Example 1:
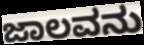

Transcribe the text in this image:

ಜಾಲವನು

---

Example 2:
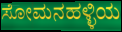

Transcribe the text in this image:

ಸೋಮನಹಳ್ಳಿಯ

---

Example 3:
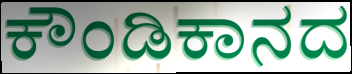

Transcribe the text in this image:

ಕೌಂಡಿಕಾನದ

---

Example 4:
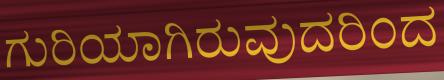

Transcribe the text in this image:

ಗುರಿಯಾಗಿರುವುದರಿಂದ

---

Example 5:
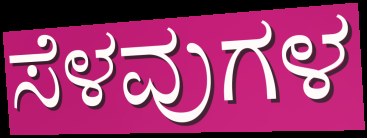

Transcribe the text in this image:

ಸೆಳವುಗಳ